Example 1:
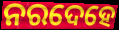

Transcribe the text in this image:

ନରଦେହେ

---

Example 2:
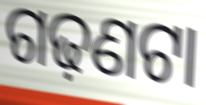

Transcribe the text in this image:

ଗଢ଼ଣଟା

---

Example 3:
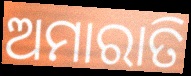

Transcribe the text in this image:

ଅମାରାତି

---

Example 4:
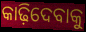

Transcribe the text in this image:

କାଢ଼ିଦେବାକୁ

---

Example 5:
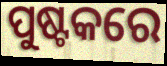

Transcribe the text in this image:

ପୁଷ୍ଟକରେ